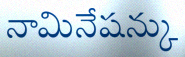
నామినేషన్కు